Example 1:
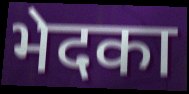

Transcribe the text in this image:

भेदका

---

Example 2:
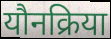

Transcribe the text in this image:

यौनक्रिया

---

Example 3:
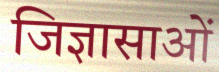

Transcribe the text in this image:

जिज्ञासाओं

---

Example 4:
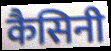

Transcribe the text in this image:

कैसिनी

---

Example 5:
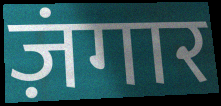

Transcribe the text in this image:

ज़ंगार